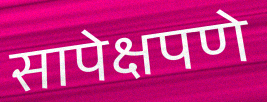
सापेक्षपणे